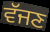
ਵੱਜਣ